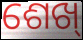
ଶେଖ୍